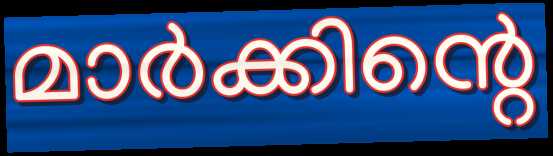
മാർക്കിന്റെ